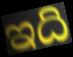
ఇది